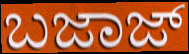
ಬಜಾಜ್